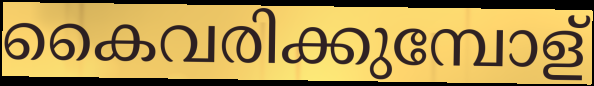
കൈവരിക്കുമ്പോള്